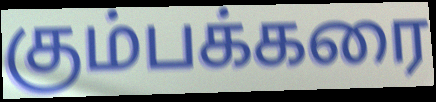
கும்பக்கரை